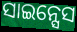
ସାଇନ୍ସେସ